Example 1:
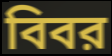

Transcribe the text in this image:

বিবর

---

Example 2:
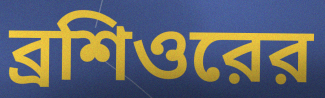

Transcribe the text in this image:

ব্রশিওরের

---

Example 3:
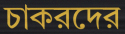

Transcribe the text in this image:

চাকরদের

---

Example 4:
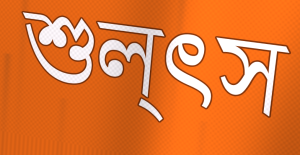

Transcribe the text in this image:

শুল্ৎস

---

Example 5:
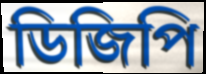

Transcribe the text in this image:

ডিজিপি